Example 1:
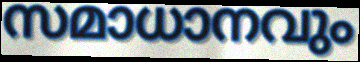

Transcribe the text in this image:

സമാധാനവും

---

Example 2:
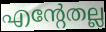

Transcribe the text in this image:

എന്റേതല്ല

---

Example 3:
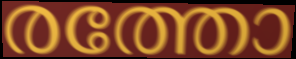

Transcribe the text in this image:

രത്തോ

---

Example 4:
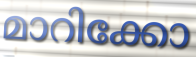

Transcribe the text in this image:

മാറിക്കോ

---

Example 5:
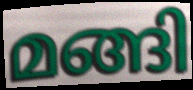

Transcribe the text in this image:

മങ്ങി